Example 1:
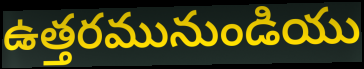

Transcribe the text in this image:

ఉత్తరమునుండియు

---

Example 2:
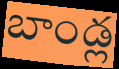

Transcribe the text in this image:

బాండ్ల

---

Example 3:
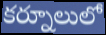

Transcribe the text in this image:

కర్నూలులో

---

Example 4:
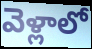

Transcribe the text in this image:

వెళ్లాలో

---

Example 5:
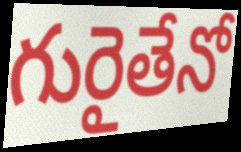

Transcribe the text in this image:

గురైతేనో